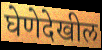
घेणेदेखील